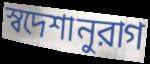
স্বদেশানুরাগ